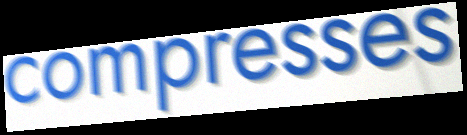
compresses